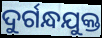
ଦୁର୍ଗନ୍ଧଯୁକ୍ତ